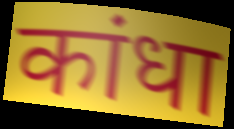
कांधा